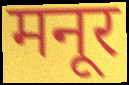
मनूर